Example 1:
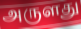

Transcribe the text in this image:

அருளது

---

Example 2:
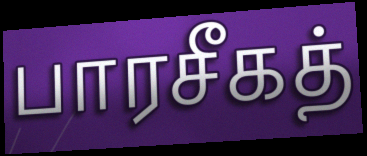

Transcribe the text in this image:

பாரசீகத்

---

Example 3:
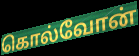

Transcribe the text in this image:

கொல்வோன்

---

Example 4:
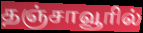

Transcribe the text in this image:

தஞ்சாவூரில்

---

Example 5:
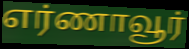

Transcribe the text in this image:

எர்ணாவூர்